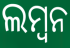
ଲମ୍ବନ